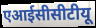
एआईसीसीटीयू